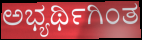
ಅಭ್ಯರ್ಥಿಗಿಂತ